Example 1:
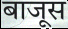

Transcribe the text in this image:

बाजूस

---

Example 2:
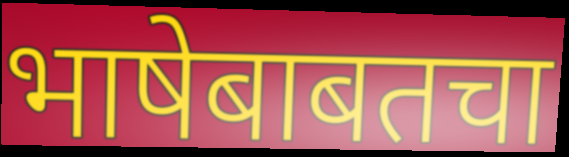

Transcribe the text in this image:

भाषेबाबतचा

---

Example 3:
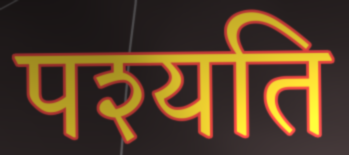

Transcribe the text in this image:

पश्यति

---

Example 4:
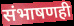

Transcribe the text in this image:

संभाषणही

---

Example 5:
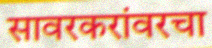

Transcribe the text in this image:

सावरकरांवरचा